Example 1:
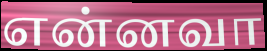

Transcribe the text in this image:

என்னவா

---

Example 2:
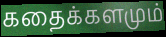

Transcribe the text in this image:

கதைக்களமும்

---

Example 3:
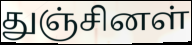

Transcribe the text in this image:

துஞ்சினள்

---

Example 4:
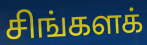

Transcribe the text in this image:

சிங்களக்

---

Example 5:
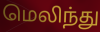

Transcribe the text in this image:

மெலிந்து